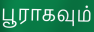
பூராகவும்